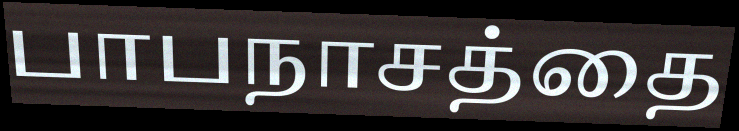
பாபநாசத்தை